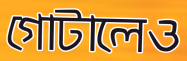
গোটালেও